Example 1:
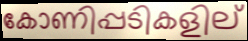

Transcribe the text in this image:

കോണിപ്പടികളില്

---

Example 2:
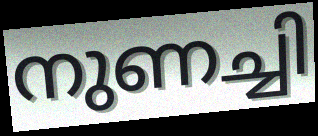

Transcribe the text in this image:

നുണച്ചി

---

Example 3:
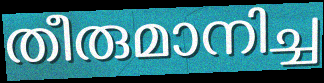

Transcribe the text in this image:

തീരുമാനിച്ച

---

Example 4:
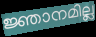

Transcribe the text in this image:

ജ്ഞാനമില്ല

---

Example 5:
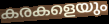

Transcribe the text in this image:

കരകളെയും